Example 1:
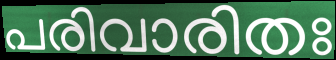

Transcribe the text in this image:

പരിവാരിതഃ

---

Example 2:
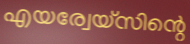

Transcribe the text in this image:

എയര്വേയ്സിന്റെ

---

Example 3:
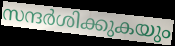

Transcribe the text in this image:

സന്ദർശിക്കുകയും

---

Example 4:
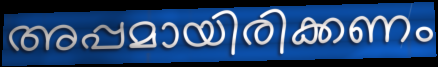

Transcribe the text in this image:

അപ്പമായിരിക്കണം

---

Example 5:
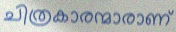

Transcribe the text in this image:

ചിത്രകാരന്മാരാണ്